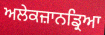
ਅਲੇਕਜ਼ਾਨਡ੍ਰਿਆ